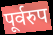
पूर्वरुप